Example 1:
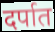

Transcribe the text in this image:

दर्पात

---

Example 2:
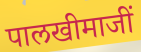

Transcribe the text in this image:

पालखीमाजीं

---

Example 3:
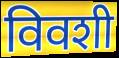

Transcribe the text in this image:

विवशी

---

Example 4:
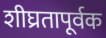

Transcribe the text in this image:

शीघ्रतापूर्वक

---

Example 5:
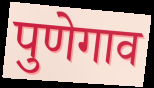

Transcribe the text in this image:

पुणेगाव